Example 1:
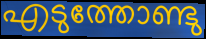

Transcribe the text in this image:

എടുത്തോണ്ടു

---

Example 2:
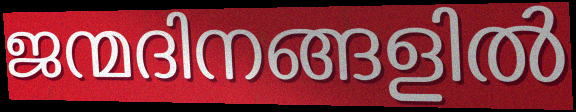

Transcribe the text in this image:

ജന്മദിനങ്ങളിൽ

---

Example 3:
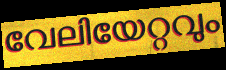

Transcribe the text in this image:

വേലിയേറ്റവും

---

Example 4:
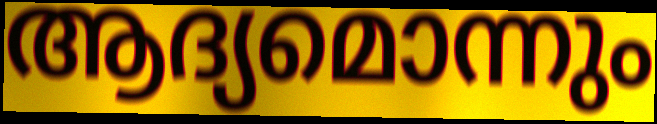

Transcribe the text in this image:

ആദ്യമൊന്നും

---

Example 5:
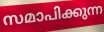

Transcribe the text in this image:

സമാപിക്കുന്ന